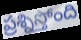
ప్రశ్నిస్తోంది